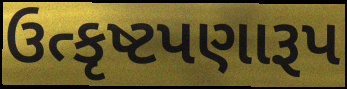
ઉત્કૃષ્ટપણારૂપ